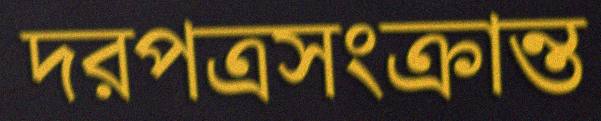
দরপত্রসংক্রান্ত